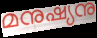
മനുഷ്യനു